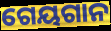
ଗେୟଗାନ